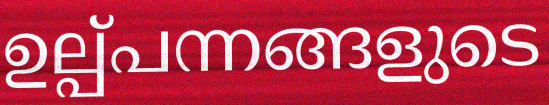
ഉല്പ്പന്നങ്ങളുടെ